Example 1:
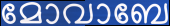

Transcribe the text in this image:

മോവാബേ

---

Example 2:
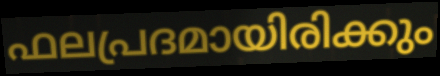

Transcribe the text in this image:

ഫലപ്രദമായിരിക്കും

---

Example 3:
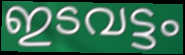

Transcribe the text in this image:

ഇടവട്ടം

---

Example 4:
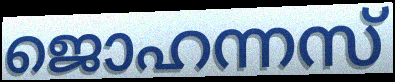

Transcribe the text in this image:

ജൊഹന്നസ്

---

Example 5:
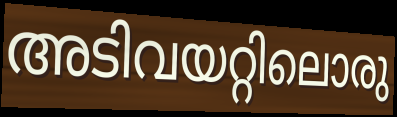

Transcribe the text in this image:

അടിവയറ്റിലൊരു